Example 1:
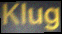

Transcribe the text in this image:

Klug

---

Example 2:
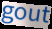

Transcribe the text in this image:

gout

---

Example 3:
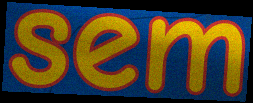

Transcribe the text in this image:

sem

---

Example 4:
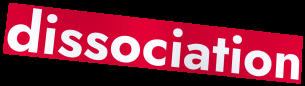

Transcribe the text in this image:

dissociation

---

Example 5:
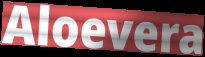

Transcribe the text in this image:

Aloevera